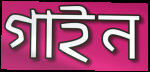
গাইন